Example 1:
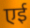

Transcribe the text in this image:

एई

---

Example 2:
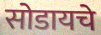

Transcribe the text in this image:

सोडायचे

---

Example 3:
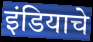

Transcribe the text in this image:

इंडियाचे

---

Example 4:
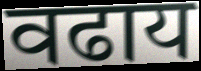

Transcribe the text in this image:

वढाय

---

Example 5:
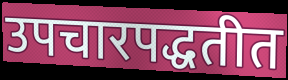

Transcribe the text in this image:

उपचारपद्धतीत